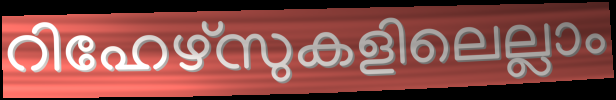
റിഹേഴ്സുകളിലെല്ലാം